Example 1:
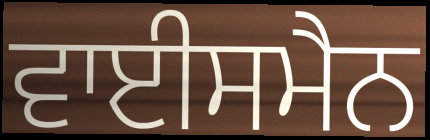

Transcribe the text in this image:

ਵਾਈਸਮੈਨ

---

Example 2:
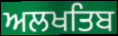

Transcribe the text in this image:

ਅਲਖਤਿਬ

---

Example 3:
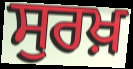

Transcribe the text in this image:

ਸੁਰਖ਼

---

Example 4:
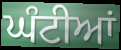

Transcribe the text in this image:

ਘੰਟੀਆਂ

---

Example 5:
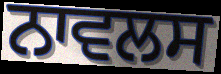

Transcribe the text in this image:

ਨਾਵਲਸ